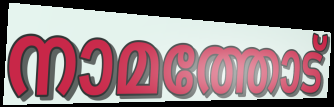
നാമത്തോട്